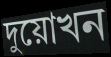
দুয়োখন